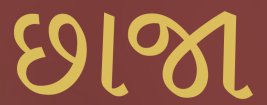
છાજા